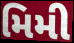
મિમી